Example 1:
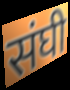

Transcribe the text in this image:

संघी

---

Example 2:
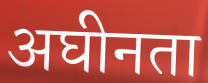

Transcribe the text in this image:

अघीनता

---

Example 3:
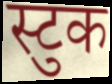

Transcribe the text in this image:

स्टुक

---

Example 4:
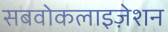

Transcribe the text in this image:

सबवोकलाइज़ेशन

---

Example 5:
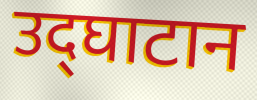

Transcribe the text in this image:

उद्घाटान